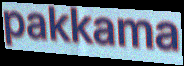
pakkama